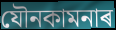
যৌনকামনাৰ